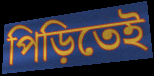
পিড়িতেই